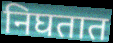
निघतात